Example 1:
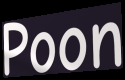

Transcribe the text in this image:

Poon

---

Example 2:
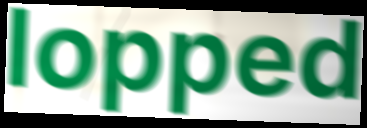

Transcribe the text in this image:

lopped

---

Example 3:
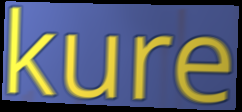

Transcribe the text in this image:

kure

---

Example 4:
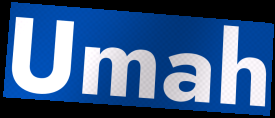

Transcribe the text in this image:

Umah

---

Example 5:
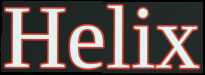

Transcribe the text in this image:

Helix